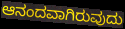
ಆನಂದವಾಗಿರುವುದು